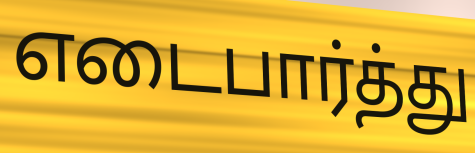
எடைபார்த்து